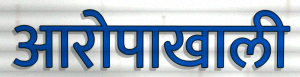
आरोपाखाली